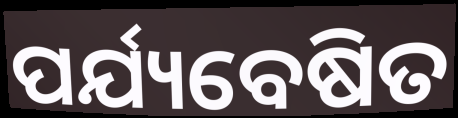
ପର୍ଯ୍ୟବେଷିତ